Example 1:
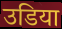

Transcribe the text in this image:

उडिया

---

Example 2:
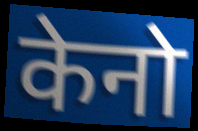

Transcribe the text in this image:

केनो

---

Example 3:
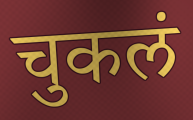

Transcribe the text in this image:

चुकलं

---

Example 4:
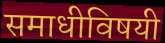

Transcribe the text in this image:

समाधीविषयी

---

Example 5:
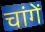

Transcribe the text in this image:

चांगें